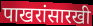
पाखरांसारखी